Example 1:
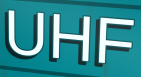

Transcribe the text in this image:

UHF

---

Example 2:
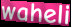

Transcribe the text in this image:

waheli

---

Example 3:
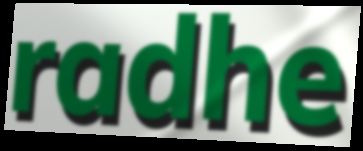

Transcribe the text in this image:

radhe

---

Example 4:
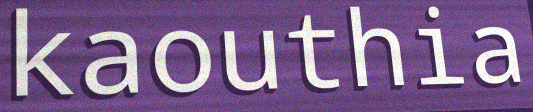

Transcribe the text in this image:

kaouthia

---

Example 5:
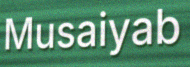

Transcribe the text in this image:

Musaiyab